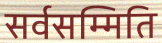
सर्वसम्मिति